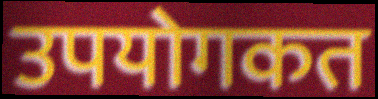
उपयोगकत